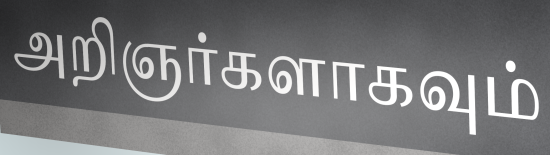
அறிஞர்களாகவும்